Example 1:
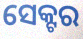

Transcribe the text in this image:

ସେକ୍ଟର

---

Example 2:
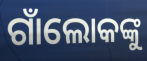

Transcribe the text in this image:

ଗାଁଲୋକଙ୍କୁ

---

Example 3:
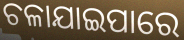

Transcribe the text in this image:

ଚଳାଯାଇପାରେ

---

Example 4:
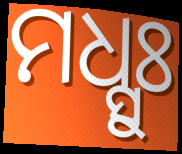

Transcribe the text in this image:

ମଧ୍ସୁଃ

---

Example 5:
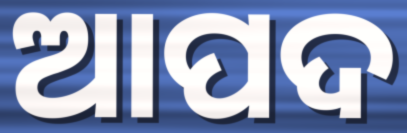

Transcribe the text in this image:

ଆପଦ